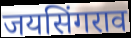
जयसिंगराव